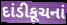
દાંડીકૂચનાં